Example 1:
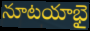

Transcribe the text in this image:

నూటయాభై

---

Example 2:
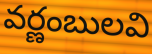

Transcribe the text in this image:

వర్ణంబులవి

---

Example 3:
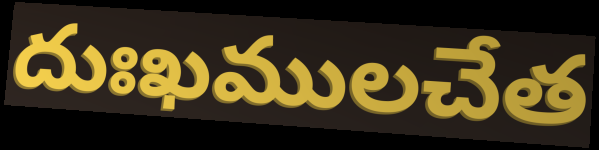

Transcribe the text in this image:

దుఃఖములచేత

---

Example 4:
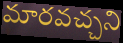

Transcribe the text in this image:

మారవచ్చని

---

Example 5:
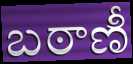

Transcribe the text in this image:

బఠాణీ